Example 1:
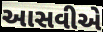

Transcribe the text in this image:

આસવીએ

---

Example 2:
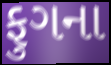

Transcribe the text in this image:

ફુગના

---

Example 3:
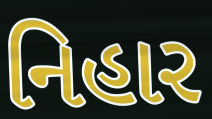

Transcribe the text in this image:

નિહાર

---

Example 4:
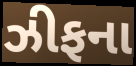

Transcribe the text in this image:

ઝીફના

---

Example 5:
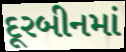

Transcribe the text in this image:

દૂરબીનમાં